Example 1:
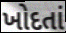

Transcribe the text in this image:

ખોદતાં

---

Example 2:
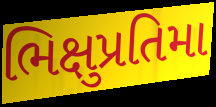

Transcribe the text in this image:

ભિક્ષુપ્રતિમા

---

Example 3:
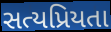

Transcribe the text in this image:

સત્યપ્રિયતા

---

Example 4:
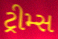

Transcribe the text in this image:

ટ્રીમ્સ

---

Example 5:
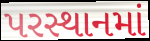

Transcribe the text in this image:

પરસ્થાનમાં